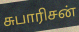
சுபாரிசன்